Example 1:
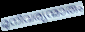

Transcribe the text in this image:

മുനിവര്യന്മാരും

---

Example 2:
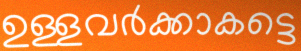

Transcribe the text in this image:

ഉള്ളവർക്കാകട്ടെ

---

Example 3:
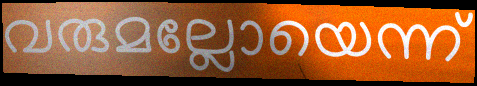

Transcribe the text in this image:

വരുമല്ലോയെന്ന്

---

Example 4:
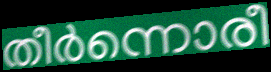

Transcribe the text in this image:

തീർന്നൊരീ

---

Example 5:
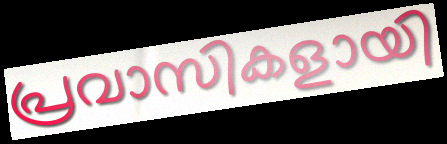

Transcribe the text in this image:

പ്രവാസികളായി